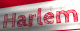
Harlem